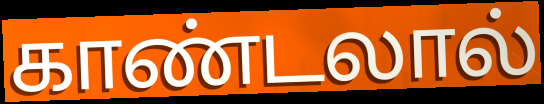
காண்டலால்